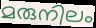
മരുനിലം